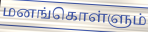
மனங்கொள்ளும்